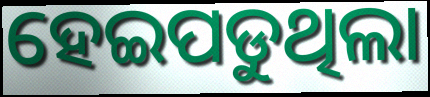
ହେଇପଡୁଥିଲା